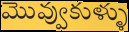
మొవ్వుకుళ్ళు